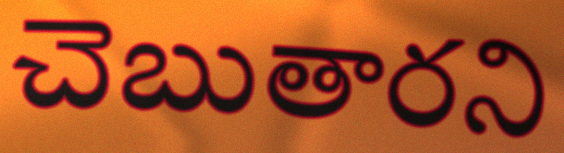
చెబుతారని